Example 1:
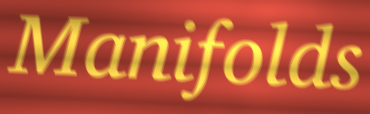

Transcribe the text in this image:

Manifolds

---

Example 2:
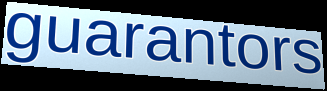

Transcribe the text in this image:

guarantors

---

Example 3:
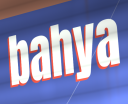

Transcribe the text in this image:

bahya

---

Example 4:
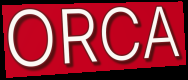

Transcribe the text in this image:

ORCA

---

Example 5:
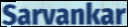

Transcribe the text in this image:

Sarvankar